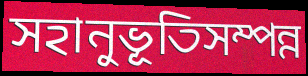
সহানুভূতিসম্পন্ন